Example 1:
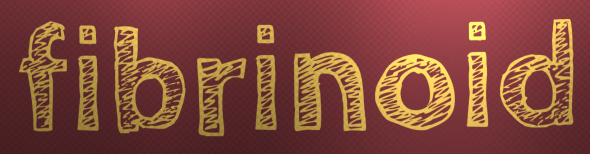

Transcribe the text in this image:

fibrinoid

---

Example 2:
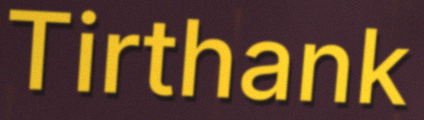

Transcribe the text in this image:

Tirthank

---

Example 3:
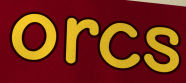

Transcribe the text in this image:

orcs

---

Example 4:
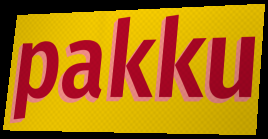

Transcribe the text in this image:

pakku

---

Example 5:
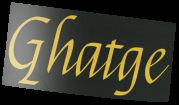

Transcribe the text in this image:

Ghatge